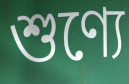
শুণ্যে